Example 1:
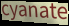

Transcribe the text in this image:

cyanate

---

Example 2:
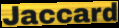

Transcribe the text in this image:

Jaccard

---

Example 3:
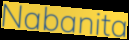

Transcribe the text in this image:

Nabanita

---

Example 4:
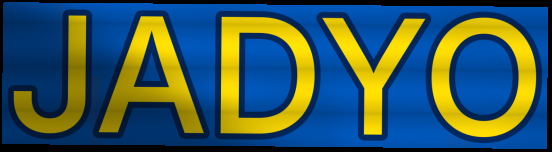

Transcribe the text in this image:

JADYO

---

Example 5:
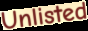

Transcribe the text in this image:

Unlisted